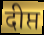
दीप्त